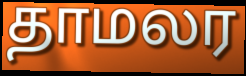
தாமலர